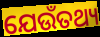
ଯେଉଁତଥ୍ୟ